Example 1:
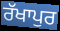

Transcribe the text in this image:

ਰੱਖਾਪੁਰ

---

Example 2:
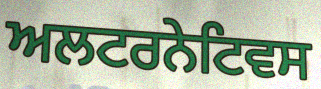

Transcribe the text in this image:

ਅਲਟਰਨੇਟਿਵਸ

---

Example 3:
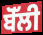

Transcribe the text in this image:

ਬੋੱਲੀ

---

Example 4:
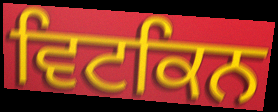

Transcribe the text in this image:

ਵਿਟਕਿਨ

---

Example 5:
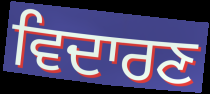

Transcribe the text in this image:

ਵਿਦਾਰਣ